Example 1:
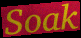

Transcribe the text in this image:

Soak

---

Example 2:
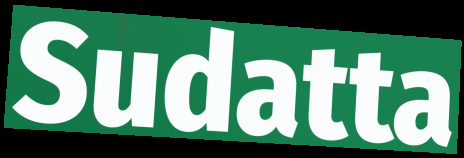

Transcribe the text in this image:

Sudatta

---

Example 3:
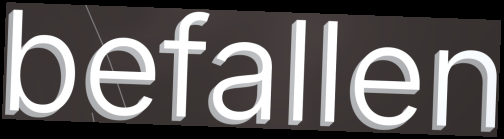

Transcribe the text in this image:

befallen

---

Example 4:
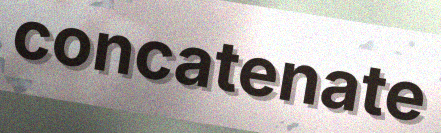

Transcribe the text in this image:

concatenate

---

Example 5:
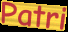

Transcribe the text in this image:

Patri